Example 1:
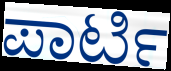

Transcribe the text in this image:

ಪಾರ್ಟಿ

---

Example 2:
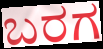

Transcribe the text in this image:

ಬರಗ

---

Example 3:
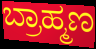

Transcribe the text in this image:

ಬ್ರಾಹ್ಮಣ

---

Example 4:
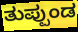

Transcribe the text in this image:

ತುಪ್ಪುಂಡ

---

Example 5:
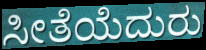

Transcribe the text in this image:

ಸೀತೆಯೆದುರು